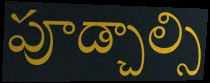
పూడ్చాల్సి